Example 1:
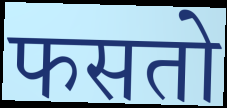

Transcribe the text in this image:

फसतो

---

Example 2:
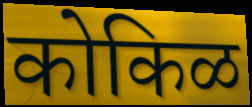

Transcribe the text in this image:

कोकिळ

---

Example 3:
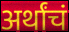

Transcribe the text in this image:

अर्थांचं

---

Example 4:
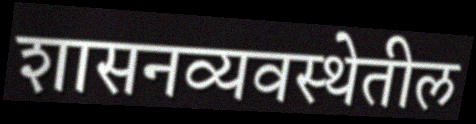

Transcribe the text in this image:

शासनव्यवस्थेतील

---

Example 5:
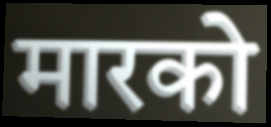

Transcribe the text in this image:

मारको